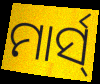
ମାର୍ସ୍